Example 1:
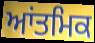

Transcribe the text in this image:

ਆਂਤਮਿਕ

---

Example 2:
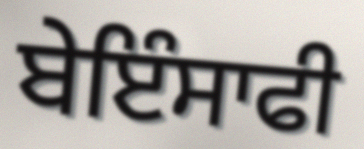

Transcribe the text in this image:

ਬੇਇੰਸਾਫੀ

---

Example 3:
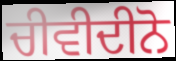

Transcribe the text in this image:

ਚੀਵੀਦੀਨੋ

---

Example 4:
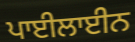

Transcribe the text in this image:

ਪਾਈਲਾਈਨ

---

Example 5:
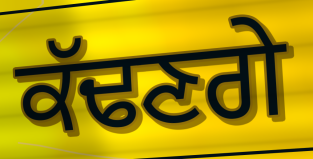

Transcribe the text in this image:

ਕੱਢਣਗੇ